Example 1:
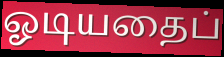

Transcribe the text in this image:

ஓடியதைப்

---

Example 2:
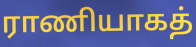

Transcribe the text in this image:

ராணியாகத்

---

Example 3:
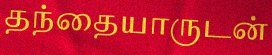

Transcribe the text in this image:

தந்தையாருடன்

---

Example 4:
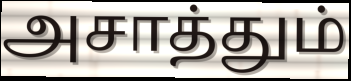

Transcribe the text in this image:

அசாத்தும்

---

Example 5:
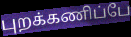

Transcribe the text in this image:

புறக்கணிப்பே